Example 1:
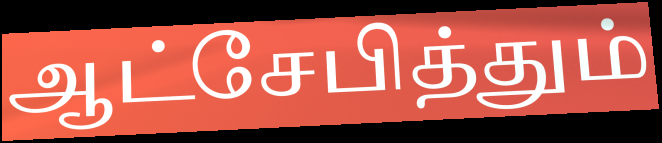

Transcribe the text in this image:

ஆட்சேபித்தும்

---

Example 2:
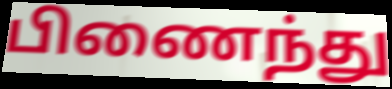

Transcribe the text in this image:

பிணைந்து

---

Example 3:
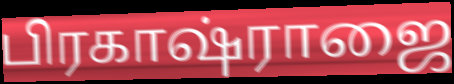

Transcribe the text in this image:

பிரகாஷ்ராஜை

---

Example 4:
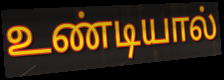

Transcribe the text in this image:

உண்டியால்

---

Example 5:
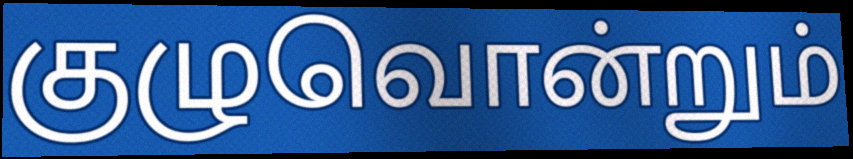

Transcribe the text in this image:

குழுவொன்றும்